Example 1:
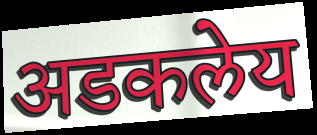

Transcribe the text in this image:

अडकलेय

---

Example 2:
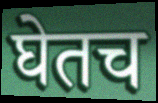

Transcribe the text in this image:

घेतच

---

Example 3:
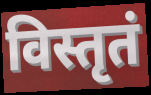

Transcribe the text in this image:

विस्तृतं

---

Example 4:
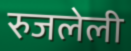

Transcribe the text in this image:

रुजलेली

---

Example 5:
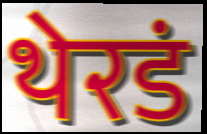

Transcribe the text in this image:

थेरडं